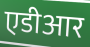
एडीआर